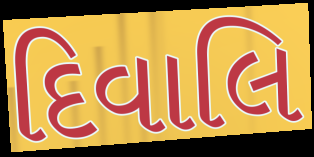
દિવાલિ